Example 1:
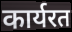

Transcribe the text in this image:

कार्यरत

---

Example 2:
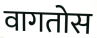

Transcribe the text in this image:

वागतोस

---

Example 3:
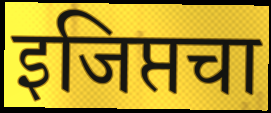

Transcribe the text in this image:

इजिप्तचा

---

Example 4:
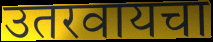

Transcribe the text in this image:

उतरवायचा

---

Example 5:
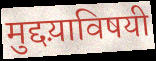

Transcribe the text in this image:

मुद्दय़ाविषयी